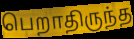
பெறாதிருந்த